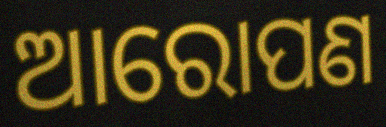
ଆରୋପଣ